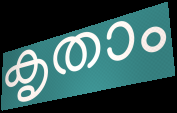
കൃതാം